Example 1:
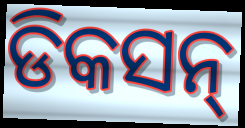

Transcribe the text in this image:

ଡିକସନ୍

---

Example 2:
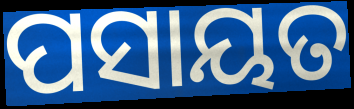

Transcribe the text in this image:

ପସାୟତ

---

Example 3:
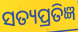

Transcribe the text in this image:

ସତ୍ୟପ୍ରତିଜ୍ଞ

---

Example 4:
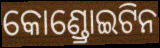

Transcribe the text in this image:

କୋଣ୍ଡ୍ରୋଇଟିନ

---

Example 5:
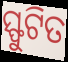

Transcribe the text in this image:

ସ୍ଫୁଟିତ